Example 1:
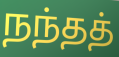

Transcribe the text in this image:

நந்தத்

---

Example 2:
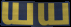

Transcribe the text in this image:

யய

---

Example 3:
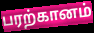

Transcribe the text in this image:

பரற்கானம்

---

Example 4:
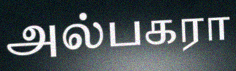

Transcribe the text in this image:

அல்பகரா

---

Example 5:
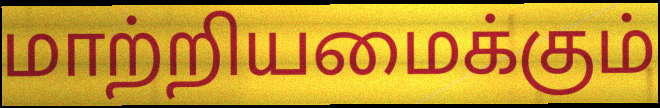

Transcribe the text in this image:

மாற்றியமைக்கும்